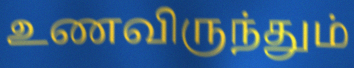
உணவிருந்தும்